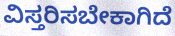
ವಿಸ್ತರಿಸಬೇಕಾಗಿದೆ